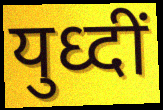
युध्दीं